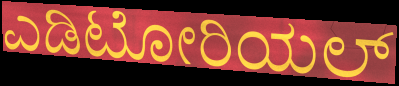
ಎಡಿಟೋರಿಯಲ್